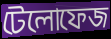
টেলোফেজ